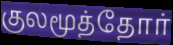
குலமூத்தோர்